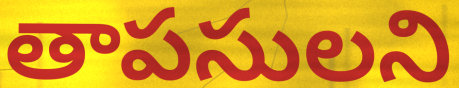
తాపసులని